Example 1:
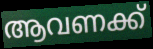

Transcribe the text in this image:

ആവണക്ക്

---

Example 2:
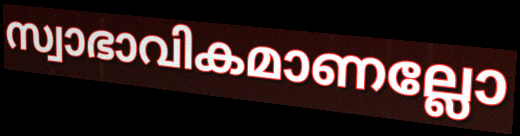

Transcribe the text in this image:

സ്വാഭാവികമാണല്ലോ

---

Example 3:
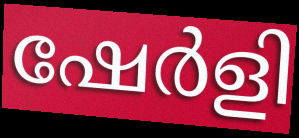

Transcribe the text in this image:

ഷേർളി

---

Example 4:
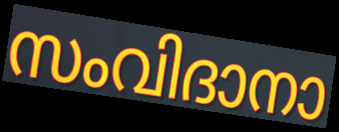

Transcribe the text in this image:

സംവിദാനാ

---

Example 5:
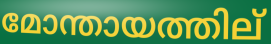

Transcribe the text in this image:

മോന്തായത്തില്